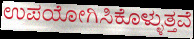
ಉಪಯೋಗಿಸಿಕೊಳ್ಳುತ್ತವೆ